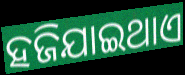
ହଜିଯାଇଥାଏ